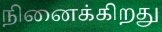
நினைக்கிறது